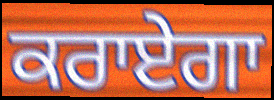
ਕਰਾਏਗਾ